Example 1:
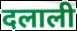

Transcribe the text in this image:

दलाली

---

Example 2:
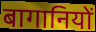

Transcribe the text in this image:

बागानियों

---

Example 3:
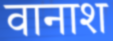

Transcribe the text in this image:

वानाश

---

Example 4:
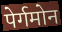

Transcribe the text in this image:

पेर्गमोन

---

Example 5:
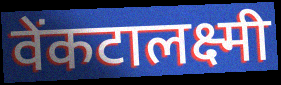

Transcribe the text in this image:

वेंकटालक्ष्मी